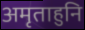
अमृताहुनि